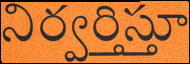
నిర్వర్తిస్తూ